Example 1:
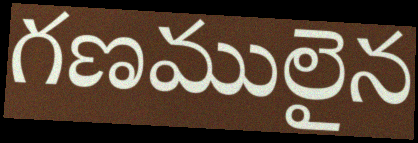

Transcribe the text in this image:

గణములైన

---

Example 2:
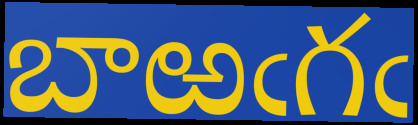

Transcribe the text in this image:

బాఱఁగఁ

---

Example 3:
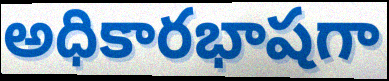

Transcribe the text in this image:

అధికారభాషగా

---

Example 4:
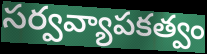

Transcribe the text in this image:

సర్వవ్యాపకత్వం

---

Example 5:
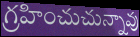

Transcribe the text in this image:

గ్రహించుచున్నావు